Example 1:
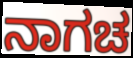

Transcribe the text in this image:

ನಾಗಚ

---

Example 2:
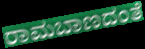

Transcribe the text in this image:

ರಾಮಬಾಣದಂತೆ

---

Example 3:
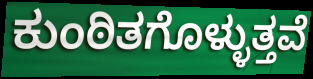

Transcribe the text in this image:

ಕುಂಠಿತಗೊಳ್ಳುತ್ತವೆ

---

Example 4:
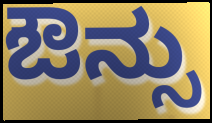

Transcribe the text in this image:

ಔನ್ಸು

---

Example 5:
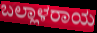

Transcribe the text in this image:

ಬಲ್ಲಾಳರಾಯ